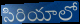
సిరియాలో